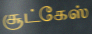
சூட்கேஸ்